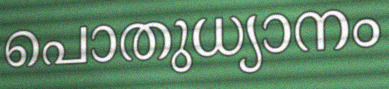
പൊതുധ്യാനം